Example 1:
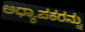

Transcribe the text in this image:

ಅಧ್ಯಾಪಕರನ್ನು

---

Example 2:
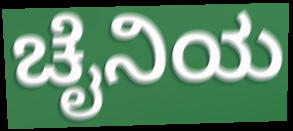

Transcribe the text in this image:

ಚೈನಿಯ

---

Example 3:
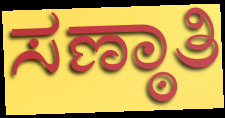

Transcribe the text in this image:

ಸಣ್ಠಾತಿ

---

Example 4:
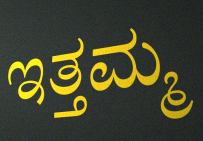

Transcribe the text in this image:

ಇತ್ತಮ್ಮ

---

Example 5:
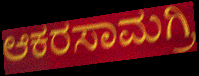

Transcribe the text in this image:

ಆಕರಸಾಮಗ್ರಿ